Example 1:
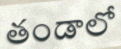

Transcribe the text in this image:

తండాలో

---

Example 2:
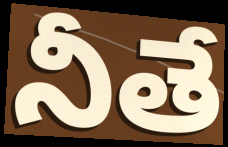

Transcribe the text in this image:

నీతే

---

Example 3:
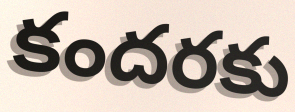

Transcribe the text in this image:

కందరకు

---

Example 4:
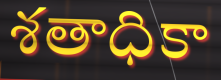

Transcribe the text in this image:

శతాధికా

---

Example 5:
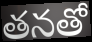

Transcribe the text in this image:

తనతో